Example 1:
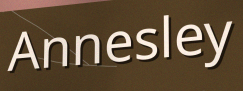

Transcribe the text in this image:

Annesley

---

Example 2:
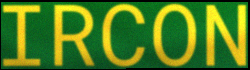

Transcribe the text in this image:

IRCON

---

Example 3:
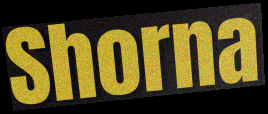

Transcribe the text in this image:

Shorna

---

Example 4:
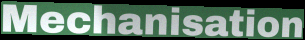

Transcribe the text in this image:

Mechanisation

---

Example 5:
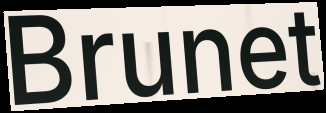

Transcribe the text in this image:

Brunet